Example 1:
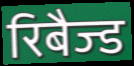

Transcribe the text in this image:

रिबैज्ड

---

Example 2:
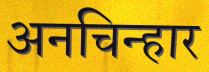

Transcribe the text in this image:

अनचिन्हार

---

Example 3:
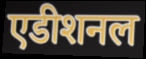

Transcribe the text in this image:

एडीशनल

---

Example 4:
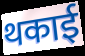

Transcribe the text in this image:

थकाई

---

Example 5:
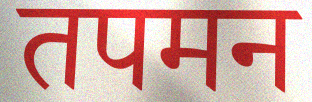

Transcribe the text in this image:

तपमन